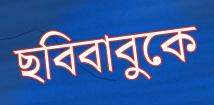
ছবিবাবুকে